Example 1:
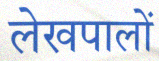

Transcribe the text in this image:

लेखपालों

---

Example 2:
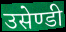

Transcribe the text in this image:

उसेण्डी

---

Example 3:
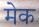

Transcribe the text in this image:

मेक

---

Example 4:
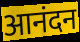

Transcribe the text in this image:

आनंदन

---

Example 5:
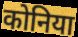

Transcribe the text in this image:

कोनिया